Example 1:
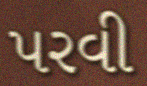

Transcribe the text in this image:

પરવી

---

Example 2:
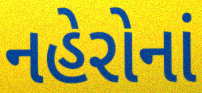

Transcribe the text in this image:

નહેરોનાં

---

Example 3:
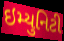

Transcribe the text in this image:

ઇમ્યુનિટી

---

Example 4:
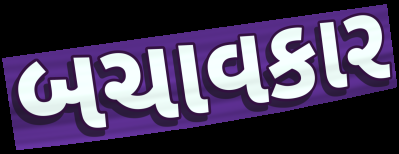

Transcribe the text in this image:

બચાવકાર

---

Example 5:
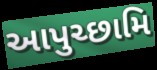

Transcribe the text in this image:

આપુચ્છામિ